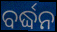
ବର୍ଦ୍ଧନ